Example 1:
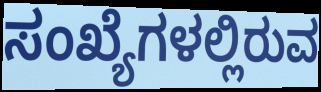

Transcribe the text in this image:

ಸಂಖ್ಯೆಗಳಲ್ಲಿರುವ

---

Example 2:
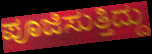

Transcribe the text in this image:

ಪೂಜಿಸುತ್ತಿದ್ದು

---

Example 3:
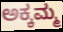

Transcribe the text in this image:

ಅಕ್ಕಮ್ಮ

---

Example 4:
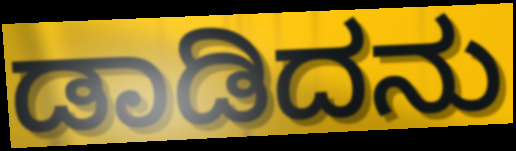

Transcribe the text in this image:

ಡಾಡಿದನು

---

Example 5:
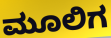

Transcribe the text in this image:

ಮೂಲಿಗ